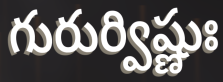
గురుర్విష్ణుః